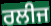
ਰਲੀਜ